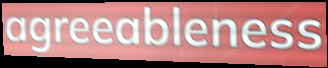
agreeableness